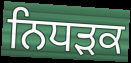
ਨਿਧਡ਼ਕ